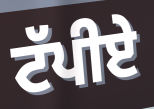
ਟੱਪੀਏ